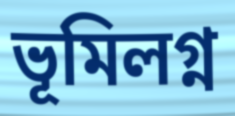
ভূমিলগ্ন